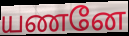
யணனே